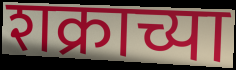
शक्राच्या